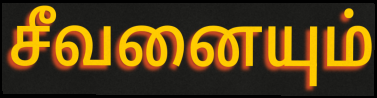
சீவனையும்